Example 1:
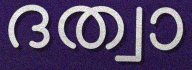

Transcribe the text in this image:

ദത്വാ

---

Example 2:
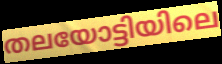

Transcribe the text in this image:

തലയോട്ടിയിലെ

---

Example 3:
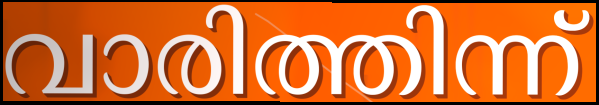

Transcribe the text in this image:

വാരിത്തിന്ന്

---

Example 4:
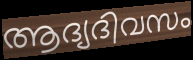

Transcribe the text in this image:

ആദ്യദിവസം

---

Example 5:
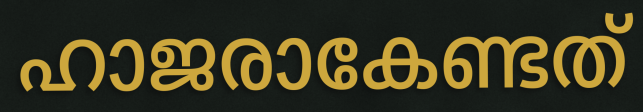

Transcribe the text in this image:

ഹാജരാകേണ്ടത്